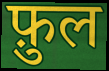
फ़ुल